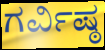
ಗರ್ವಿಷ್ಠ